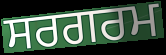
ਸਰਗਰਮ